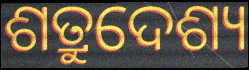
ଶତ୍ରୁଦେଶ୍ୟ